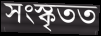
সংস্কৃতত